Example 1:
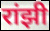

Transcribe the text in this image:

रांझी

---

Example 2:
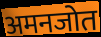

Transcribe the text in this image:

अमनजोत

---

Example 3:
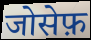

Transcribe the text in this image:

जोसेफ़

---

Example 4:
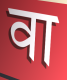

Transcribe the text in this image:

वा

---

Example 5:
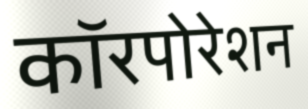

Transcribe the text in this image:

कॉरपोरेशन